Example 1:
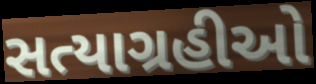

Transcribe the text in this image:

સત્યાગ્રહીઓ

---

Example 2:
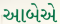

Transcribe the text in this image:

આબેએ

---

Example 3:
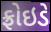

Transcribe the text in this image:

ફ્રોઇડે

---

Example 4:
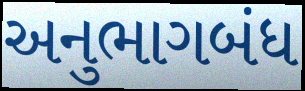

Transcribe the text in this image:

અનુભાગબંધ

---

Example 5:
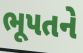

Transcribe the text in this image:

ભૂપતને